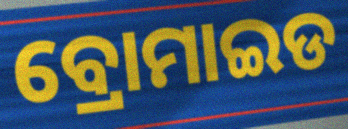
ବ୍ରୋମାଇଡ